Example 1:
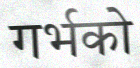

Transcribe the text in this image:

गर्भको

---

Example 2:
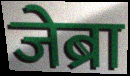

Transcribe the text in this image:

जेब्रा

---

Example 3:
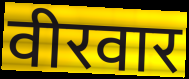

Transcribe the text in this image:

वीरवार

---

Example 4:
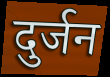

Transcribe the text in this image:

दुर्जन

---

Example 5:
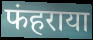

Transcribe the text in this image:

फंहराया